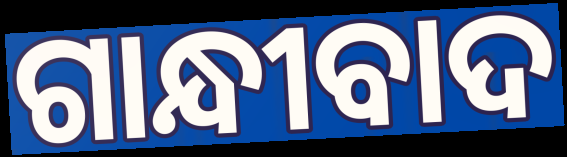
ଗାନ୍ଧୀବାଦ